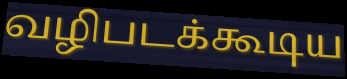
வழிபடக்கூடிய